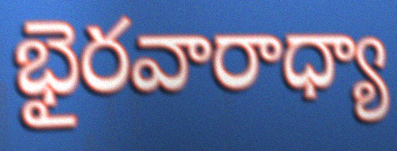
భైరవారాధ్యా